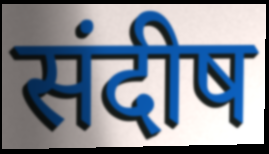
संदीष